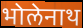
भोलेनाथ